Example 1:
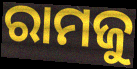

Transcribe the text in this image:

ରାମଜୁ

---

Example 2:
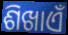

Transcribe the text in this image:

ଶିଖାଏଁ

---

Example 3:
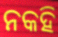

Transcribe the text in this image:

ନକହି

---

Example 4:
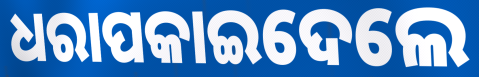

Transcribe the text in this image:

ଧରାପକାଇଦେଲେ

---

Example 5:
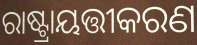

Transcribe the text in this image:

ରାଷ୍ଟ୍ରାୟତ୍ତୀକରଣ